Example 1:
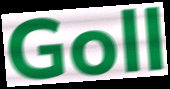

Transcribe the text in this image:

Goll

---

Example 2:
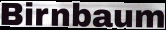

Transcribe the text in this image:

Birnbaum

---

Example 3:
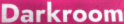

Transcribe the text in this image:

Darkroom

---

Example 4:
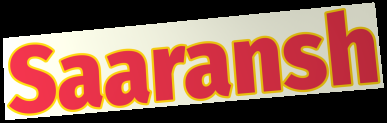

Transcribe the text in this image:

Saaransh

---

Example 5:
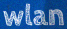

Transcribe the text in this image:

wlan